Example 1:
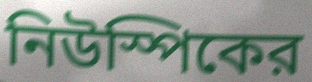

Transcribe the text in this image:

নিউস্পিকের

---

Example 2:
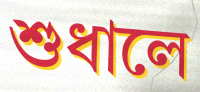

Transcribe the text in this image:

শুধালে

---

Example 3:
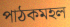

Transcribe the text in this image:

পাঠকমহল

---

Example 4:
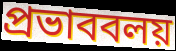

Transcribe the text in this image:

প্রভাববলয়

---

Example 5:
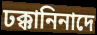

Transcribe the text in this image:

ঢক্কানিনাদে